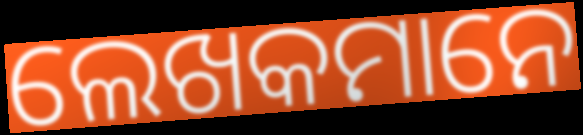
ଲେଖକମାନେ